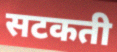
सटकती